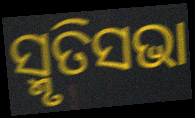
ସ୍ମୃତିସଭା